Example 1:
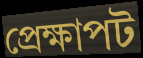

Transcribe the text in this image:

প্রেক্ষাপট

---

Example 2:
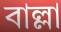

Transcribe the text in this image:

বাল্লা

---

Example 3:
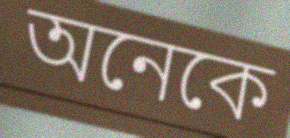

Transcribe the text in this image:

অনেকে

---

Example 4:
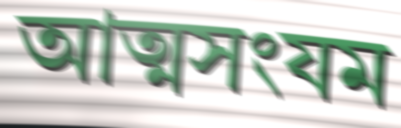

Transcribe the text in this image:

আত্মসংযম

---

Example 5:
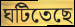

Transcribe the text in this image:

ঘটিতেছে